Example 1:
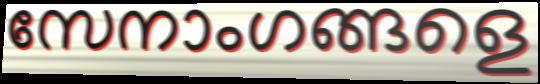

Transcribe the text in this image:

സേനാംഗങ്ങളെ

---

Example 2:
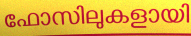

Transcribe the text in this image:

ഫോസിലുകളായി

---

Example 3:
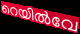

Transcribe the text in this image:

റെയിൽവേ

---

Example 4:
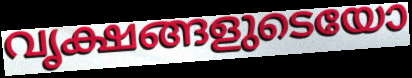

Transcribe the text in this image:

വൃക്ഷങ്ങളുടെയോ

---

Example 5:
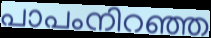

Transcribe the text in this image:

പാപംനിറഞ്ഞ